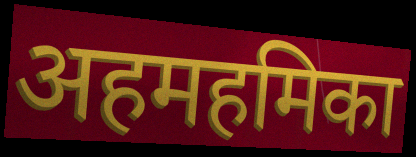
अहमहमिका